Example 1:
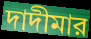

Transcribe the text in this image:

দাদীমার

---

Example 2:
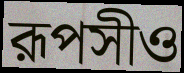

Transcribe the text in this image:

রূপসীও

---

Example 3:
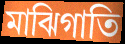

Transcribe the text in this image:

মাঝিগাতি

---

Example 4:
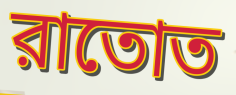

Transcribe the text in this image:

রাতোত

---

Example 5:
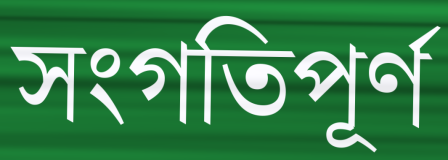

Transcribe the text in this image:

সংগতিপূর্ণ